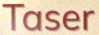
Taser